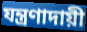
যন্ত্রণাদায়ী